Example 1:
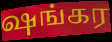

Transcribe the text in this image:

ஷங்கர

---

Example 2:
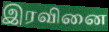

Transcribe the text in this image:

இரவினை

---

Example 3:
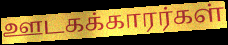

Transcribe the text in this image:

ஊடகக்காரர்கள்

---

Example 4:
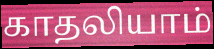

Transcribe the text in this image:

காதலியாம்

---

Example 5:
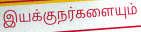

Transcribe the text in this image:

இயக்குநர்களையும்